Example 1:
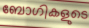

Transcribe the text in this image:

ബോഗികളുടെ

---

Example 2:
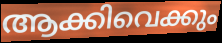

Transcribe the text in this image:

ആക്കിവെക്കും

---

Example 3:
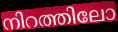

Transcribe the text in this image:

നിറത്തിലോ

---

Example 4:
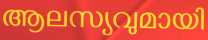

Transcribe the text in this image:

ആലസ്യവുമായി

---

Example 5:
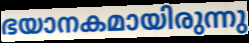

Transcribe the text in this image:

ഭയാനകമായിരുന്നു